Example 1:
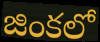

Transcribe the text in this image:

జింకలో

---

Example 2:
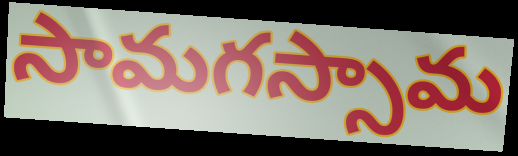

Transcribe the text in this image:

సామగస్సామ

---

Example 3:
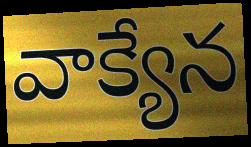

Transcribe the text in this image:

వాక్యేన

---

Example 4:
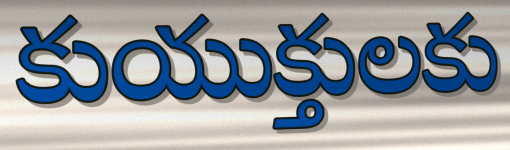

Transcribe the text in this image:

కుయుక్తులకు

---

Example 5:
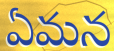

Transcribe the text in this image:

ఏమన